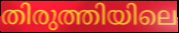
തിരുത്തിയിലെ